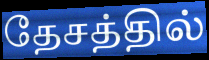
தேசத்தில்